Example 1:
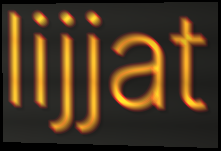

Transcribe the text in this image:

lijjat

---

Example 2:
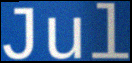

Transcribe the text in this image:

Jul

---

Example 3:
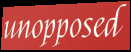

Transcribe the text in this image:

unopposed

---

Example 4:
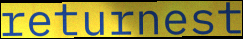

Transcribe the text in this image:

returnest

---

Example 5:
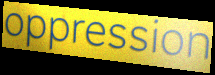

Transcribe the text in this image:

oppression